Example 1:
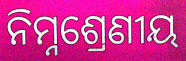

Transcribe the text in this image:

ନିମ୍ନଶ୍ରେଣୀୟ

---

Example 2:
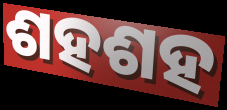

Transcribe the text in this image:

ଶହଶହ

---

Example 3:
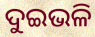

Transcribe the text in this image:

ଦୁଇଭଳି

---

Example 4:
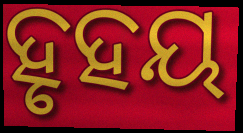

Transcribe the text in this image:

ହୃହୟ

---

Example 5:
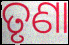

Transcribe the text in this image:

ତୃଣା